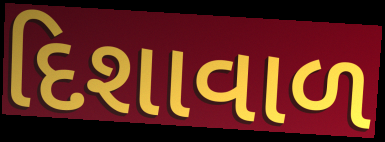
દિશાવાળ